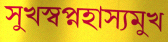
সুখস্বপ্নহাস্যমুখ